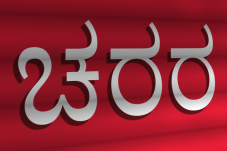
ಚರರ